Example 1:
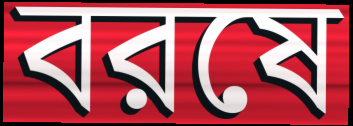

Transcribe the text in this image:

বরষে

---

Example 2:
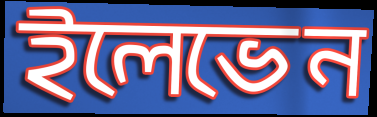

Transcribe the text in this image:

ইলেভেন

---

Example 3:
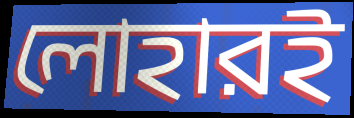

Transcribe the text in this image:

লোহারই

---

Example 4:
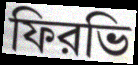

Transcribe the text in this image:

ফিরভি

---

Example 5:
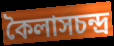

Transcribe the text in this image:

কৈলাসচন্দ্র